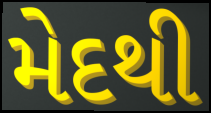
મેદથી